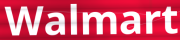
Walmart